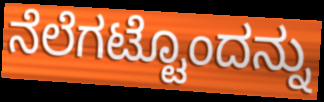
ನೆಲೆಗಟ್ಟೊಂದನ್ನು